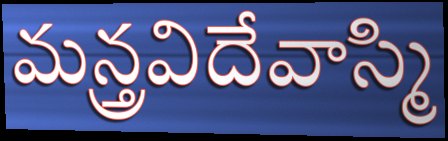
మన్త్రవిదేవాస్మి